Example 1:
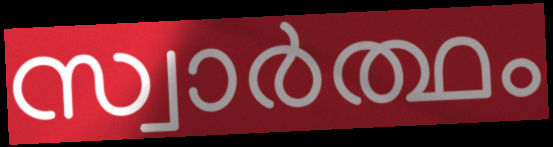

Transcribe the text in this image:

സ്വാർത്ഥം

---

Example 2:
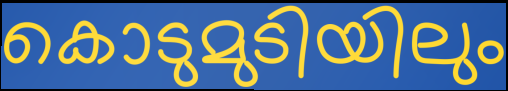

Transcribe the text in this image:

കൊടുമുടിയിലും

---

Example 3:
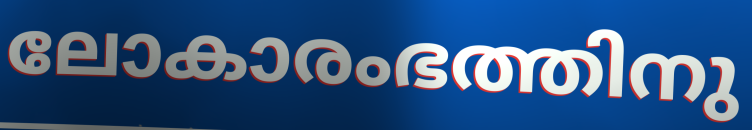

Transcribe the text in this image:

ലോകാരംഭത്തിനു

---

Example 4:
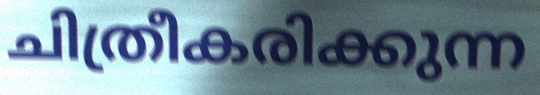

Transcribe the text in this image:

ചിത്രീകരിക്കുന്ന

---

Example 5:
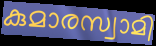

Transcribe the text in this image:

കുമാരസ്വാമി